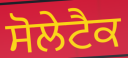
ਸੋਲੇਟੈਕ